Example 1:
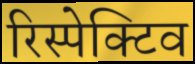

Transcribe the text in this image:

रिस्पेक्टिव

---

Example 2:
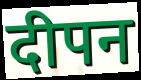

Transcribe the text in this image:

दीपन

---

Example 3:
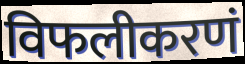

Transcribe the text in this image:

विफलीकरणं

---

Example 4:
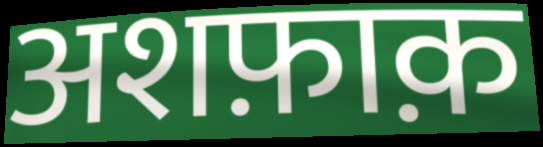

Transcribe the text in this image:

अशफ़ाक़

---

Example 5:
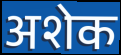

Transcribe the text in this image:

अशेक